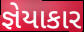
જ્ઞેયાકાર